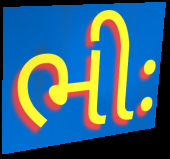
ભીઃ